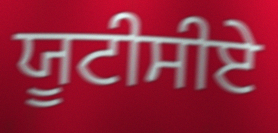
ਯੂਟੀਸੀਏ